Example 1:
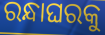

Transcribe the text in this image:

ରନ୍ଧାଘରକୁ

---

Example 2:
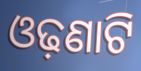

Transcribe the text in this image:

ଓଢ଼ଣାଟି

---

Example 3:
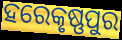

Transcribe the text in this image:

ହରେକୃଷ୍ଣପୁର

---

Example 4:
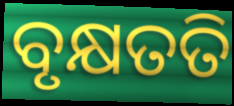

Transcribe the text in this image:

ବୃକ୍ଷତତି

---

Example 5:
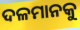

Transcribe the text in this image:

ଦଳମାନକୁ